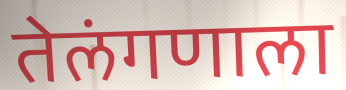
तेलंगणाला